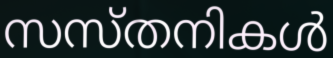
സസ്തനികൾ